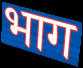
भाग